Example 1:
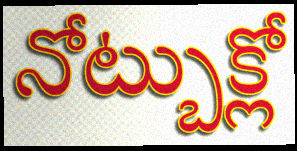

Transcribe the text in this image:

నోట్బుక్లో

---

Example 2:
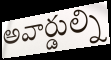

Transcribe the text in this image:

అవార్డుల్ని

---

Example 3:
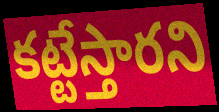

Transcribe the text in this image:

కట్టేస్తారని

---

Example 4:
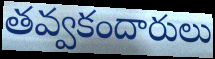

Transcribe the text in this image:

తవ్వకందారులు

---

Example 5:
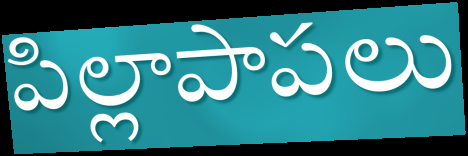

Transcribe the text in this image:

పిల్లాపాపలు